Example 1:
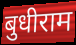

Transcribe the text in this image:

बुधीराम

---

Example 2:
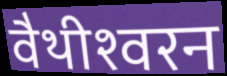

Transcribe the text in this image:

वैथीश्वरन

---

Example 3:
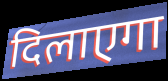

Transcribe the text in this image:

दिलाएगा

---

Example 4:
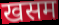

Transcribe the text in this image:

खसम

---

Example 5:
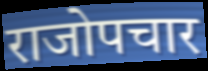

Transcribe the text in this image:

राजोपचार